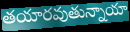
తయారవుతున్నాయా